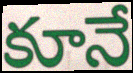
కూనే